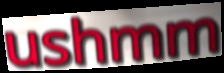
ushmm